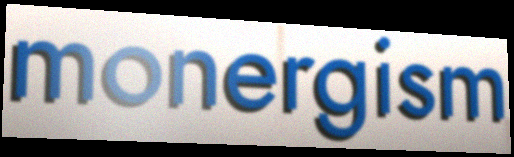
monergism